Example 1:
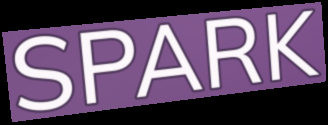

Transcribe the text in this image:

SPARK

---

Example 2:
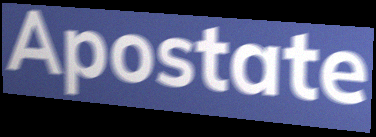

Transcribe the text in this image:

Apostate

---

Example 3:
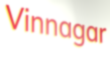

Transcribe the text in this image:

Vinnagar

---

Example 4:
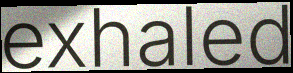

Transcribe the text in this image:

exhaled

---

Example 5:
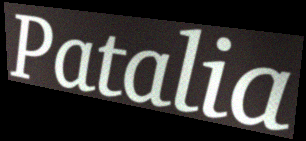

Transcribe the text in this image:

Patalia